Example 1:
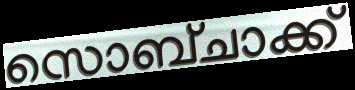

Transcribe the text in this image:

സൊബ്ചാക്ക്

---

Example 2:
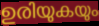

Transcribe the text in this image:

ഉരിയുകയും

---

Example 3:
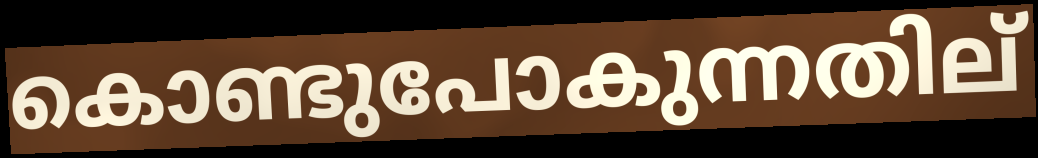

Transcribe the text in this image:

കൊണ്ടുപോകുന്നതില്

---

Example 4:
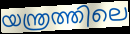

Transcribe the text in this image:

യന്ത്രത്തിലെ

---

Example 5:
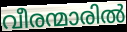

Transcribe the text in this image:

വീരന്മാരിൽ